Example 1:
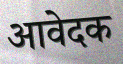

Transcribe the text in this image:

आवेदक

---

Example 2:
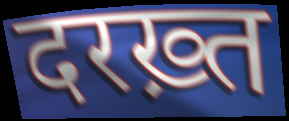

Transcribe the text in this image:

दरख़्त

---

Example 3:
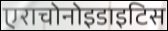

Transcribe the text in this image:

एराचोनोइडाइटिस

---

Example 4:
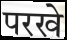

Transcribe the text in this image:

परखे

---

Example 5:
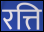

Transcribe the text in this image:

रत्ति